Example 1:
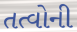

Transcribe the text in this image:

તત્વોની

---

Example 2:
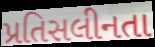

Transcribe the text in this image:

પ્રતિસલીનતા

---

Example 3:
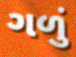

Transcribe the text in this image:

ગળું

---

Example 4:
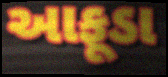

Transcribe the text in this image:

આફૂડા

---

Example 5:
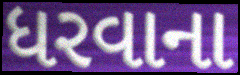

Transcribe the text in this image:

ધરવાના